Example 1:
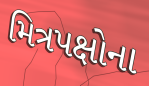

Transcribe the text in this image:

મિત્રપક્ષોના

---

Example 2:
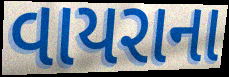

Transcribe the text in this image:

વાયરાના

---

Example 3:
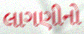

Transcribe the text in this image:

લાગણીનો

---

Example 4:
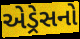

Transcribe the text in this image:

એડ્રેસનો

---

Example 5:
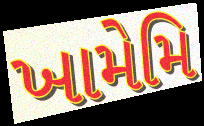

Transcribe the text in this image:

ખામેમિ